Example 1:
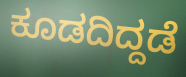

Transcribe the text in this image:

ಕೂಡದಿದ್ದಡೆ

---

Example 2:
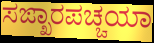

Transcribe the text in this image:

ಸಙ್ಖಾರಪಚ್ಚಯಾ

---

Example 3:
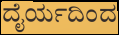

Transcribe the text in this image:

ದೈರ್ಯದಿಂದ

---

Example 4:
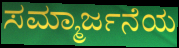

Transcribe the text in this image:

ಸಮ್ಮಾರ್ಜನೆಯ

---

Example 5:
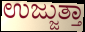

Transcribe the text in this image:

ಉಜ್ಜುತ್ತಾ